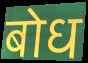
बोध